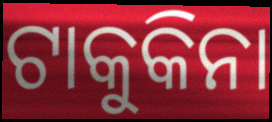
ଟାକୁକିନା